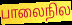
பாலைநில